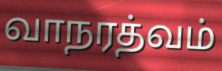
வாநரத்வம்